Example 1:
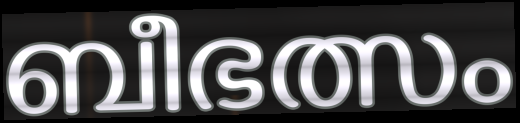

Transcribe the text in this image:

ബീഭത്സം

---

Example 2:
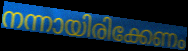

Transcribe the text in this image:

നന്നായിരിക്കേണം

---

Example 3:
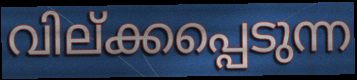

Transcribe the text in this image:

വില്ക്കപ്പെടുന്ന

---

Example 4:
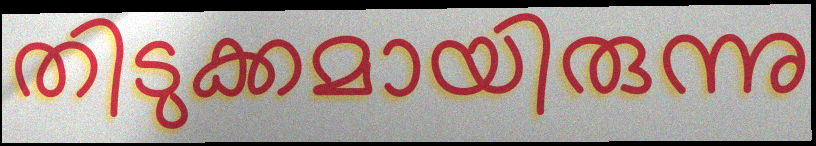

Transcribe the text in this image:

തിടുക്കമായിരുന്നു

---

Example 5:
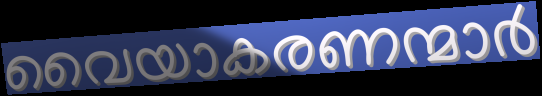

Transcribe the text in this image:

വൈയാകരണന്മാർ